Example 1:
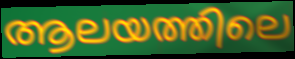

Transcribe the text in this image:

ആലയത്തിലെ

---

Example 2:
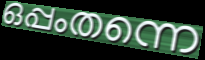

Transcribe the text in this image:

ഒപ്പംതന്നെ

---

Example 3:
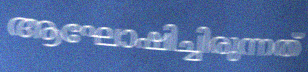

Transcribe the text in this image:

ആഘോഷിച്ചിരുന്നത്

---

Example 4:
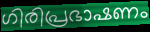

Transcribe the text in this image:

ഗിരിപ്രഭാഷണം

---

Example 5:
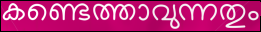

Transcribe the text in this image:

കണ്ടെത്താവുന്നതും